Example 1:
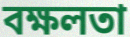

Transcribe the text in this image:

বক্ষলতা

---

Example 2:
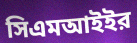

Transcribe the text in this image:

সিএমআইইর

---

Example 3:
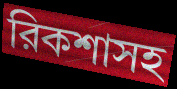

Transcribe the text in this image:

রিকশাসহ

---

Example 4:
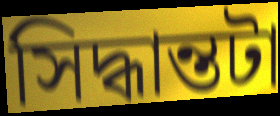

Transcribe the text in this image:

সিদ্ধান্তটা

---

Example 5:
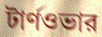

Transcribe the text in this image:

টার্ণওভার